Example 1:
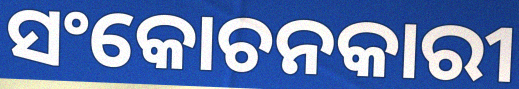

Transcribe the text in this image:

ସଂକୋଚନକାରୀ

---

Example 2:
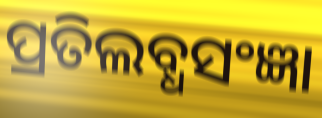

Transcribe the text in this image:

ପ୍ରତିଲବ୍ଧସଂଜ୍ଞା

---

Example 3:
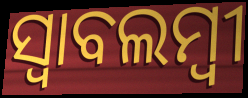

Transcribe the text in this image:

ସ୍ଵାବଲମ୍ଵୀ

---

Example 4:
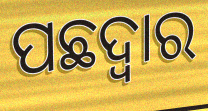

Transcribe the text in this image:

ପଛଦ୍ୱାର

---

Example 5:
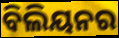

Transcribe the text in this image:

ବିଲିୟନର